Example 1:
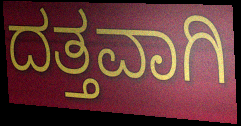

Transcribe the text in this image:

ದತ್ತವಾಗಿ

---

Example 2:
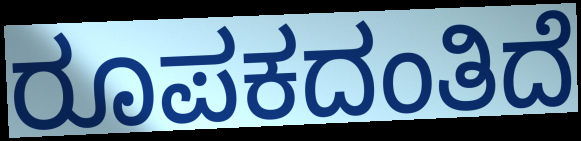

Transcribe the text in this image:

ರೂಪಕದಂತಿದೆ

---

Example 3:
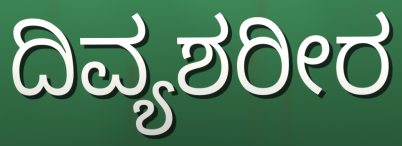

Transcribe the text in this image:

ದಿವ್ಯಶರೀರ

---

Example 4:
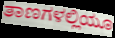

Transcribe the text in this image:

ತಾಣಗಳಲ್ಲಿಯೂ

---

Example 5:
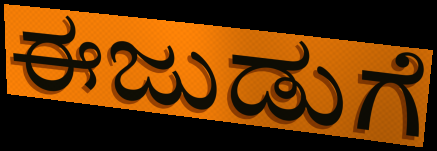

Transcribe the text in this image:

ಈಜುಡುಗೆ